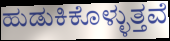
ಹುಡುಕಿಕೊಳ್ಳುತ್ತವೆ